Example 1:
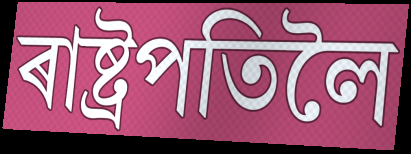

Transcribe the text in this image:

ৰাষ্ট্ৰপতিলৈ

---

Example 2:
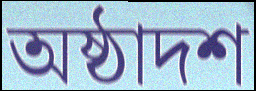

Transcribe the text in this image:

অষ্ঠাদশ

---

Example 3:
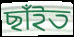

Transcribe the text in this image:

ছাঁইত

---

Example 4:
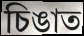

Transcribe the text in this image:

চিঙাত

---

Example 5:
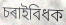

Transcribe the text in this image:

চৰাইবিধক